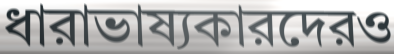
ধারাভাষ্যকারদেরও